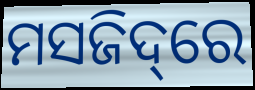
ମସଜିଦ୍‌ରେ